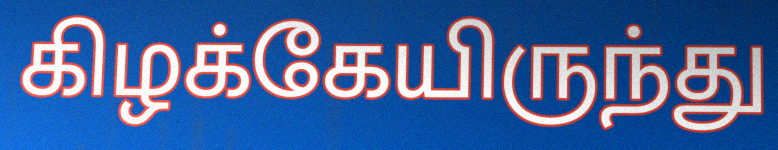
கிழக்கேயிருந்து